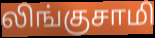
லிங்குசாமி